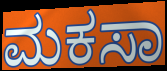
ಮಕಸಾ